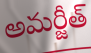
అమర్జీత్